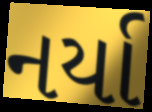
નર્યા